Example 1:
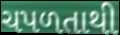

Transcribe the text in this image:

ચપળતાથી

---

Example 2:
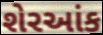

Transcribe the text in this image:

શેરઆંક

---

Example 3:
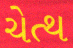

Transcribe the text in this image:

ચેત્થ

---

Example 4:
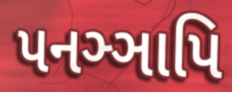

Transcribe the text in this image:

પનઞ્ઞાપિ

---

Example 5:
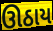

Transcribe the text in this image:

ઊઠાય